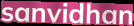
sanvidhan